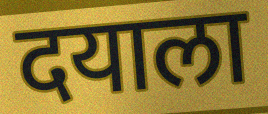
दयाला